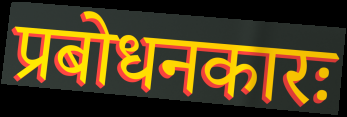
प्रबोधनकारः